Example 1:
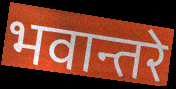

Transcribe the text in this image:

भवान्तरे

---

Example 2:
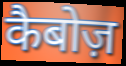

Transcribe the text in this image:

कैबोज़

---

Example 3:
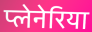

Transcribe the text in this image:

प्लेनेरिया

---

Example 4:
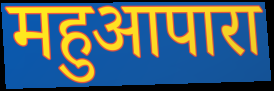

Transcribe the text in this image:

महुआपारा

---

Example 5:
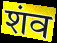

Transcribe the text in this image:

शंव